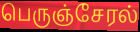
பெருஞ்சேரல்